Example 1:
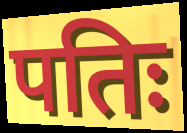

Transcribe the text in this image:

पतिः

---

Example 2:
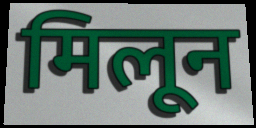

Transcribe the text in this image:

मिलून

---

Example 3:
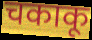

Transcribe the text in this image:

चकाकू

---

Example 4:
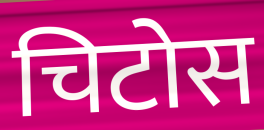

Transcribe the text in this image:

चिटोस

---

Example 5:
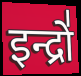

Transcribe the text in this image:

इन्द्रो॑